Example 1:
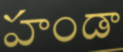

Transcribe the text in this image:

హండా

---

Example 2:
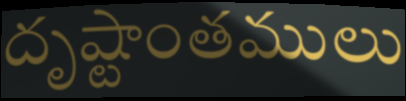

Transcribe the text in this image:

దృష్టాంతములు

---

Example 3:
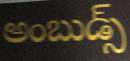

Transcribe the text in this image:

అంబుడ్స్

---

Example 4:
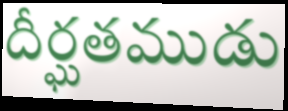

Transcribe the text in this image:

దీర్ఘతముడు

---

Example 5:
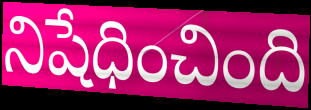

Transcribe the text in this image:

నిషేధించింది